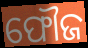
ଫୌଜ